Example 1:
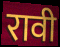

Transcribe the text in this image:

रावी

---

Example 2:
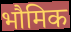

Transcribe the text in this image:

भौमिक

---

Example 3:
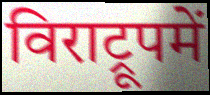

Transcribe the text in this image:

विराट्रूपमें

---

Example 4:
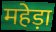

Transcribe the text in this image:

महेड़ा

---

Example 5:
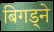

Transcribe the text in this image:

बिगड्ने